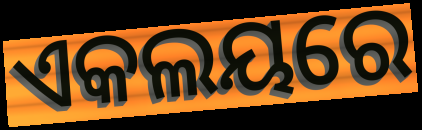
ଏକଲୟରେ